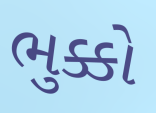
ભુક્કો